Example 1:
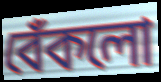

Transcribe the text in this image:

বেঁকলো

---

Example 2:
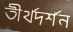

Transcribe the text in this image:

তীর্থদর্শন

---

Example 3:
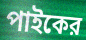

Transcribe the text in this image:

পাইকের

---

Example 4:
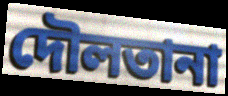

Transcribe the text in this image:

দৌলতানা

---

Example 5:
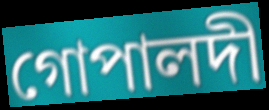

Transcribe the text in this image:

গোপালদী